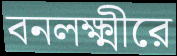
বনলক্ষ্মীরে